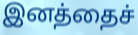
இனத்தைச்